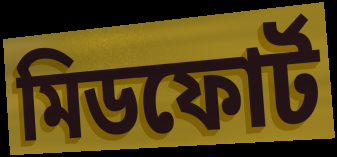
মিডফোর্ট